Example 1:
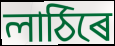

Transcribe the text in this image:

লাঠিৰে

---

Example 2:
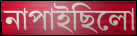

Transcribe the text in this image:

নাপাইছিলো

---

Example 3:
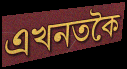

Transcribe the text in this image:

এখনতকৈ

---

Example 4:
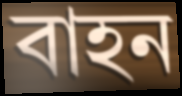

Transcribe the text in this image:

বাহন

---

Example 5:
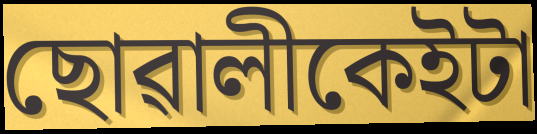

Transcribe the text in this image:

ছোৱালীকেইটা